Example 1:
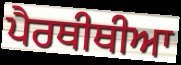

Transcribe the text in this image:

ਪੈਰਥੀਥੀਆ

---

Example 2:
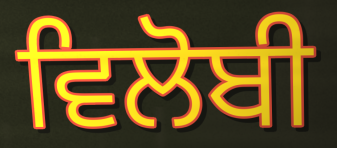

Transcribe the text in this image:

ਵਿਲੋਬੀ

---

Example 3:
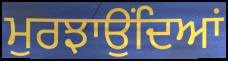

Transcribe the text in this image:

ਮੁਰਝਾਉਂਦਿਆਂ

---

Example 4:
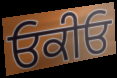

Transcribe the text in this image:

ਓਕੀਓ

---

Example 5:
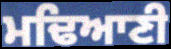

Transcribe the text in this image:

ਮਢਿਆਣੀ